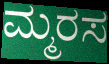
ಮ್ಮರಸ